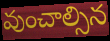
వుంచాల్సిన